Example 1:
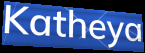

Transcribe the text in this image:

Katheya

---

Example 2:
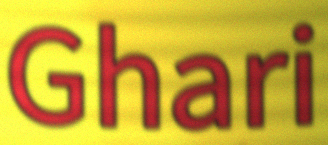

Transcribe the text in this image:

Ghari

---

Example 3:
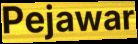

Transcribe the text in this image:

Pejawar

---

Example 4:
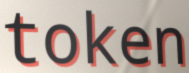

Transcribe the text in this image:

token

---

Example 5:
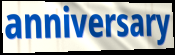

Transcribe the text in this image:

anniversary